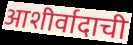
आशीर्वादाची